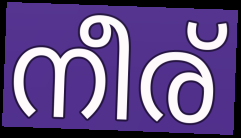
നീര്